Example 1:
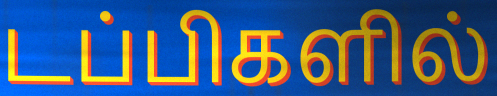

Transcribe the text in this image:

டப்பிகளில்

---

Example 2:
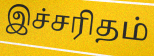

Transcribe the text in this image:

இச்சரிதம்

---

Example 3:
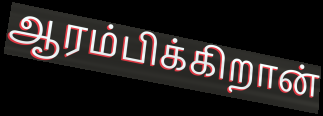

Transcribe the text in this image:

ஆரம்பிக்கிறான்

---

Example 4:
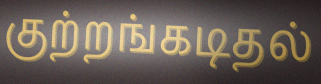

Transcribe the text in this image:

குற்றங்கடிதல்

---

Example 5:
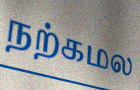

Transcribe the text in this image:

நற்கமல